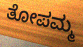
ತೋಪಮ್ಮ